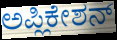
ಅಪ್ಲಿಕೇಶನ್